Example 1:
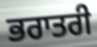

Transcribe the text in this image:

ਭਰਾਤਰੀ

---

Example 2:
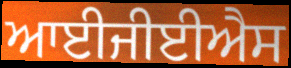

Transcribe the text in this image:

ਆਈਜੀਈਐਸ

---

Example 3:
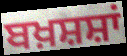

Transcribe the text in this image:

ਬਖ਼ਸ਼ਸ਼ਾਂ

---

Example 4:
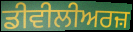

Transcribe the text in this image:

ਡੀਵੀਲੀਅਰਜ਼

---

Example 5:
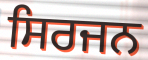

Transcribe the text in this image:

ਸਿਰਜਨ